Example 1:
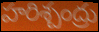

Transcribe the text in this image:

హరిశ్చంద్రు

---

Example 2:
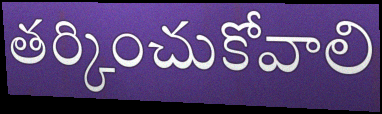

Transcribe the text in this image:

తర్కించుకోవాలి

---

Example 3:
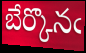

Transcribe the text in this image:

బేర్కొనఁ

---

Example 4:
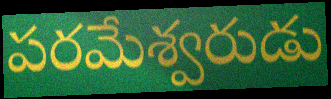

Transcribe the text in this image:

పరమేశ్వరుడు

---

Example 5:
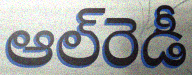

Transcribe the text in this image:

ఆల్‌రెడీ